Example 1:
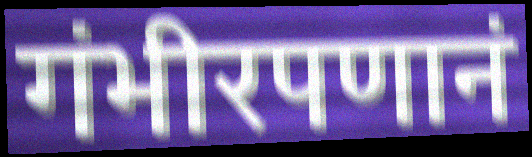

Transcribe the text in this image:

गंभीरपणानं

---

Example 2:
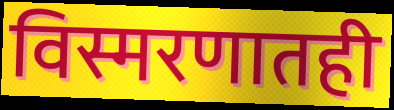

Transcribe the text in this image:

विस्मरणातही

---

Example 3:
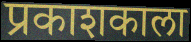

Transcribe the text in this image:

प्रकाशकाला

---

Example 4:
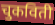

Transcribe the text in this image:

चुकविती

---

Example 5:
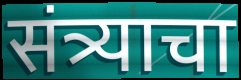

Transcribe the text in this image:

संत्र्याचा